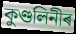
কুণ্ডলিনীৰ